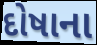
દોષાના